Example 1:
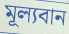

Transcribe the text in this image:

মূল্যবান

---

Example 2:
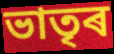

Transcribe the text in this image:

ভাতৃৰ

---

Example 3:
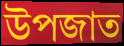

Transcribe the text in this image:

উপজাত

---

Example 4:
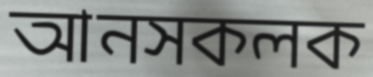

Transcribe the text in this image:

আনসকলক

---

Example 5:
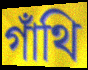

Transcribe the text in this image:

গাঁথি